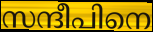
സന്ദീപിനെ